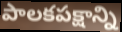
పాలకపక్షాన్ని